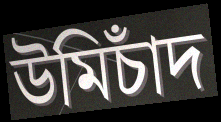
উমিচাঁদ